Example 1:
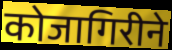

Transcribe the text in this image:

कोजागिरीने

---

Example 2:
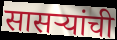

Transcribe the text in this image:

सासऱ्यांची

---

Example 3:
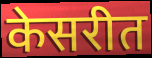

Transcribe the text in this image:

केसरीत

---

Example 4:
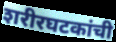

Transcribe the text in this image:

शरीरघटकांची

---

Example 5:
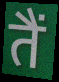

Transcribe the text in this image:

तैं